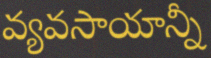
వ్యవసాయాన్నీ